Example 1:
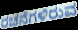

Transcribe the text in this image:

ರಚನೆಗಳಿರುವ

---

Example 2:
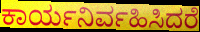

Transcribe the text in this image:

ಕಾರ್ಯನಿರ್ವಹಿಸಿದರೆ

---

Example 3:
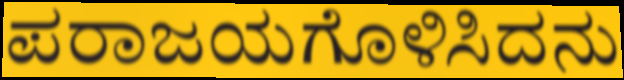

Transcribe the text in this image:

ಪರಾಜಯಗೊಳಿಸಿದನು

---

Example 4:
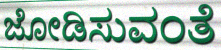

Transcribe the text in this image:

ಜೋಡಿಸುವಂತೆ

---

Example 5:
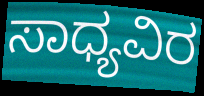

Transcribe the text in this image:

ಸಾಧ್ಯವಿರ